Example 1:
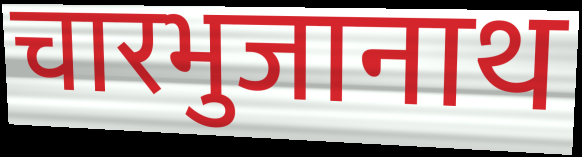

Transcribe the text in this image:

चारभुजानाथ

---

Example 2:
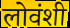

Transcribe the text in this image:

लोवंशी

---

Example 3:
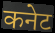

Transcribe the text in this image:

कनेट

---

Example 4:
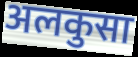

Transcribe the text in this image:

अलकुसा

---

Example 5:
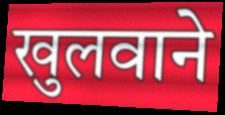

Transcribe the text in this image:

खुलवाने